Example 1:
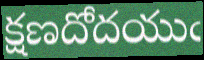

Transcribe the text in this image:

క్షణదోదయుఁ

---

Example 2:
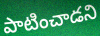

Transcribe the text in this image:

పాటించాడని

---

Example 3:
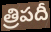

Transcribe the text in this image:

త్రిపదీ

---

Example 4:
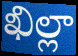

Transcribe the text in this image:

ఖిల్లా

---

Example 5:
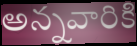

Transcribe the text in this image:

అన్నవారికి